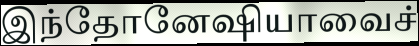
இந்தோனேஷியாவைச்